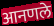
आनणले